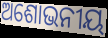
ଅଶୋଭନୀୟ